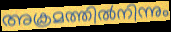
അക്രമത്തിൽനിന്നും